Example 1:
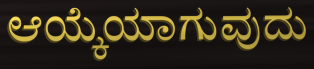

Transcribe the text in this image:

ಆಯ್ಕೆಯಾಗುವುದು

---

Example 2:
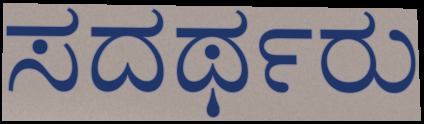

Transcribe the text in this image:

ಸದರ್ಥರು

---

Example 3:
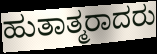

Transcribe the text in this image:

ಹುತಾತ್ಮರಾದರು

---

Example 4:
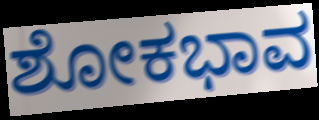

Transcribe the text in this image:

ಶೋಕಭಾವ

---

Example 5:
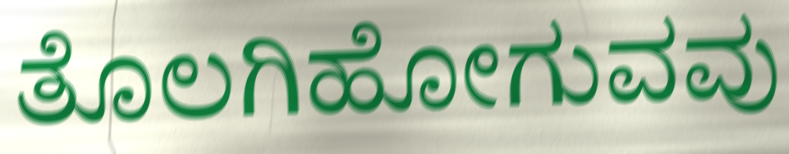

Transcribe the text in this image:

ತೊಲಗಿಹೋಗುವವು